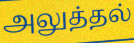
அலுத்தல்